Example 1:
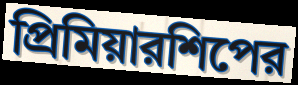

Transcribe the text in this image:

প্রিমিয়ারশিপের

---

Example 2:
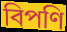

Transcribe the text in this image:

বিপণি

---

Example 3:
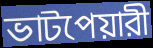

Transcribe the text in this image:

ভাটপেয়ারী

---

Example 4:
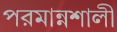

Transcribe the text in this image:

পরমান্নশালী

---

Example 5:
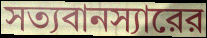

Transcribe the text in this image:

সত্যবানস্যারের